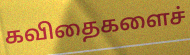
கவிதைகளைச்